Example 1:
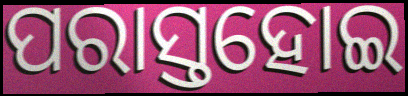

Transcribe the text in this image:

ପରାସ୍ତହୋଇ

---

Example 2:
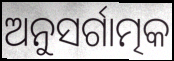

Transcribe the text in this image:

ଅନୁସର୍ଗାତ୍ମକ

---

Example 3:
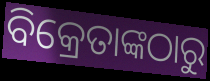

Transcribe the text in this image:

ବିକ୍ରେତାଙ୍କଠାରୁ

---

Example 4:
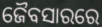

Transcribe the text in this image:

ଜୈବସାରରେ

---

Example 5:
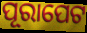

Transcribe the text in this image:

ପୂରାପେଟ